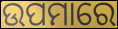
ଉପମାରେ